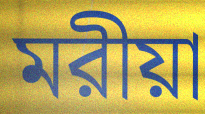
মরীয়া